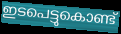
ഇടപെട്ടുകൊണ്ട്